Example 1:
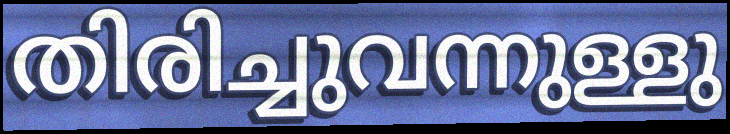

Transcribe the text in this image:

തിരിച്ചുവന്നുള്ളു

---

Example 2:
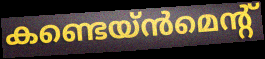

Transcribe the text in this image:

കണ്ടെയ്ൻമെന്റ്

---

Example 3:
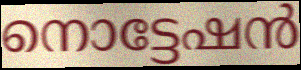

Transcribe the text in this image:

നൊട്ടേഷൻ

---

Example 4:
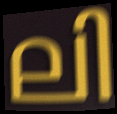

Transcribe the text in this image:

ലി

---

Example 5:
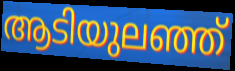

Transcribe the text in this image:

ആടിയുലഞ്ഞ്